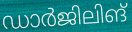
ഡാർജിലിങ്